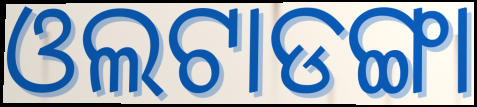
ଓଲଟାଡଙ୍ଗା